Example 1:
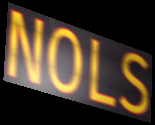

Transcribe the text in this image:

NOLS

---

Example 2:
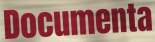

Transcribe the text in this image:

Documenta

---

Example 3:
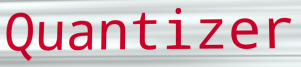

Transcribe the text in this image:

Quantizer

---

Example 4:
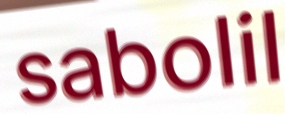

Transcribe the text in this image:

sabolil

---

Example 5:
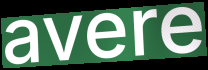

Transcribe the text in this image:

avere